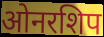
ओनरशिप